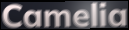
Camelia